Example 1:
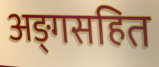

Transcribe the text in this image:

अङ्गसहित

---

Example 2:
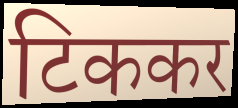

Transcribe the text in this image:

टिककर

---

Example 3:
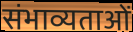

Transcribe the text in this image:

संभाव्यताओं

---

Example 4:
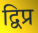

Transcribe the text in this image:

द्विप्र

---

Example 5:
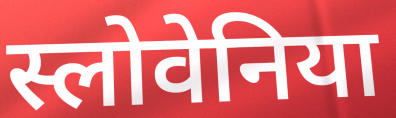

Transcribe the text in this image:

स्लोवेनिया